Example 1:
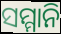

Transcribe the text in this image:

ସମ୍ମାନି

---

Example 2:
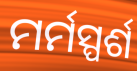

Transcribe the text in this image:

ମର୍ମସ୍ପର୍ଶ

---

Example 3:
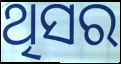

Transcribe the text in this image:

ଥିସର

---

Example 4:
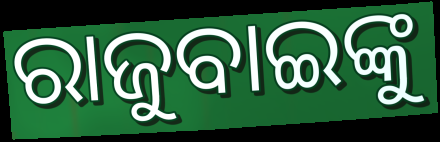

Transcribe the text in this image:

ରାଜୁବାଇଙ୍କୁ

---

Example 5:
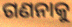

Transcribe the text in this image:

ଗଣନାକୁ